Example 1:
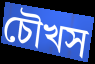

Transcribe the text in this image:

চৌখস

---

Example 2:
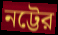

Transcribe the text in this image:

নট্টের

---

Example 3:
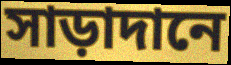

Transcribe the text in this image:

সাড়াদানে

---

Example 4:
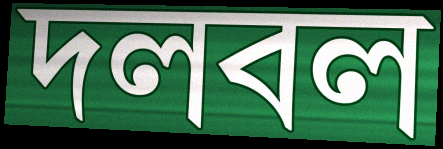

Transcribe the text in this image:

দলবল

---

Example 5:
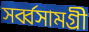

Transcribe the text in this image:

সর্ব্বসামগ্রী